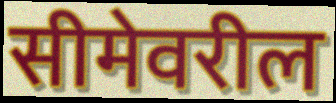
सीमेवरील